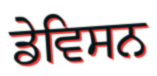
ਡੇਵਿਸਨ